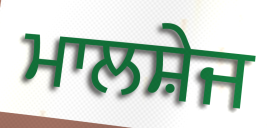
ਮਾਲਸ਼ੇਜ